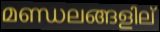
മണ്ഡലങ്ങളില്